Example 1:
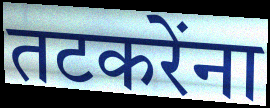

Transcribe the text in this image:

तटकरेंना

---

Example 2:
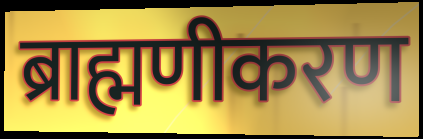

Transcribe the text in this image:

ब्राह्मणीकरण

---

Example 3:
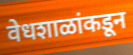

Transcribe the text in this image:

वेधशाळांकडून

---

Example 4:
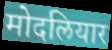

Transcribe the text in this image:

मोदलियार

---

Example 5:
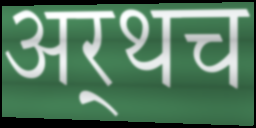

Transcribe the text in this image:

अर्थच